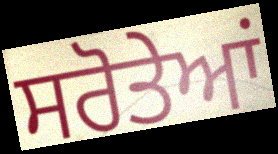
ਸਰੋਤੇਆਂ